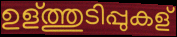
ഉള്ത്തുടിപ്പുകള്